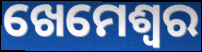
ଖେମେଶ୍ଵର